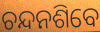
ଚନ୍ଦନଶିବେ